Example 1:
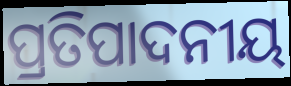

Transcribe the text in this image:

ପ୍ରତିପାଦନୀୟ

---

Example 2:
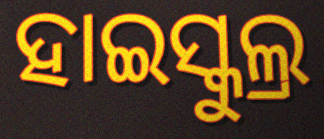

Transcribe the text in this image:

ହାଇସ୍କୁଲ୍ର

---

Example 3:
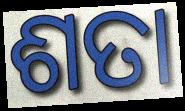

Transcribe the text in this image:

ଶତା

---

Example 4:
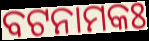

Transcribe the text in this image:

ବଟନାମକଃ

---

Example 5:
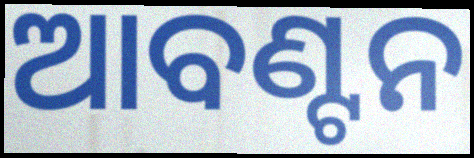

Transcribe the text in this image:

ଆବଣ୍ଟନ